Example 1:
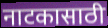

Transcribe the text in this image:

नाटकासाठी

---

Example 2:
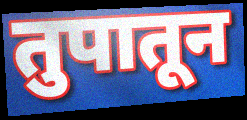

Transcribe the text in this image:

तुपातून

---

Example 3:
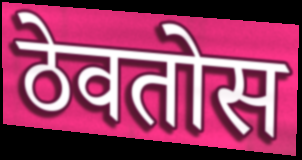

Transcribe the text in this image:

ठेवतोस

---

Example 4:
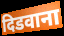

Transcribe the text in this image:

दिडवाना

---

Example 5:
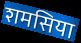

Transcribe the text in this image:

शमसिया